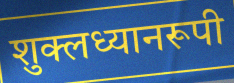
शुक्लध्यानरूपी